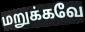
மறுக்கவே